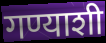
गण्याशी